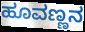
ಹೂವಣ್ಣನ